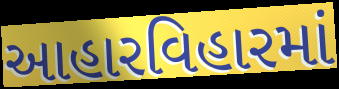
આહારવિહારમાં